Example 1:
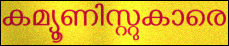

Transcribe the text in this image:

കമ്യൂണിസ്റ്റുകാരെ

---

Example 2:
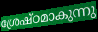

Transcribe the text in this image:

ശ്രേഷ്ഠമാകുന്നു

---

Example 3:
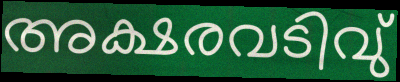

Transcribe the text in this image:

അക്ഷരവടിവു്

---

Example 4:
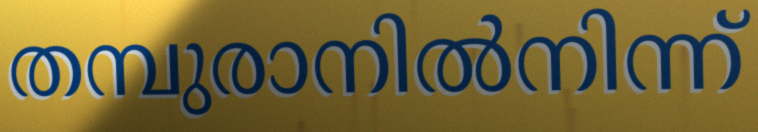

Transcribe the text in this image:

തമ്പുരാനിൽനിന്ന്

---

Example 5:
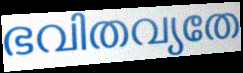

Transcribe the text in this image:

ഭവിതവ്യതേ